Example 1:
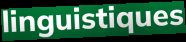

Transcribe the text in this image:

linguistiques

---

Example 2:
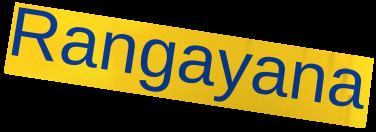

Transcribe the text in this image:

Rangayana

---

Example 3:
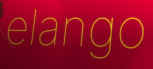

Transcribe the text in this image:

elango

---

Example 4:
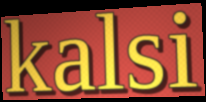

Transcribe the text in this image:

kalsi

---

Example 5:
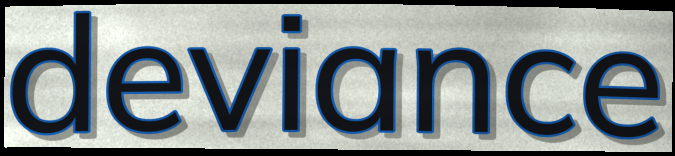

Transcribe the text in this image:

deviance